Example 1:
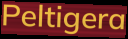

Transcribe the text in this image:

Peltigera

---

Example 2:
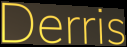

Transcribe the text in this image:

Derris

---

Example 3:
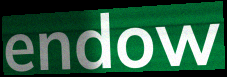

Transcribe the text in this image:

endow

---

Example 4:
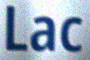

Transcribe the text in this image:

Lac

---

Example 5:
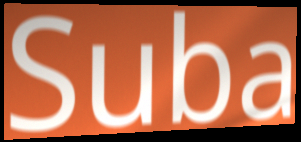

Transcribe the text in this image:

Suba